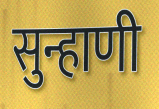
सुन्हाणी